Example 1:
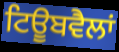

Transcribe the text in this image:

ਟਿਊਬਵੈਲਾਂ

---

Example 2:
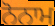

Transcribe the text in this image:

ਨੋਨਾਮ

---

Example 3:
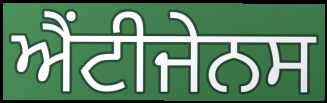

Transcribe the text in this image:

ਐਂਟੀਜੇਨਸ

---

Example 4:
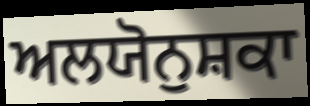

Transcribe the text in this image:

ਅਲਯੋਨੁਸ਼ਕਾ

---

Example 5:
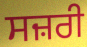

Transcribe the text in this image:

ਸਜ਼ਰੀ